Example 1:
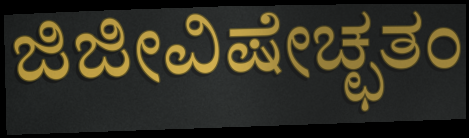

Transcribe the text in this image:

ಜಿಜೀವಿಷೇಚ್ಛತಂ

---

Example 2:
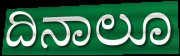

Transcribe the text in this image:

ದಿನಾಲೂ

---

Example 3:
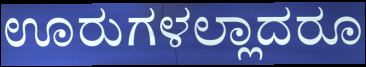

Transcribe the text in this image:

ಊರುಗಳಲ್ಲಾದರೂ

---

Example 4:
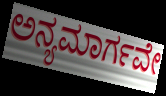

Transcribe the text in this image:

ಅನ್ಯಮಾರ್ಗವೇ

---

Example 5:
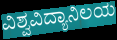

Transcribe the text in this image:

ವಿಶ್ವವಿದ್ಯಾನಿಲಯ